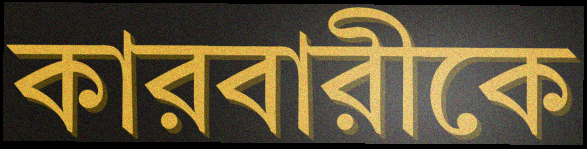
কারবারীকে